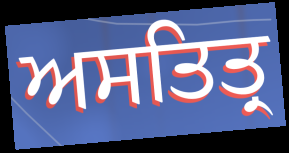
ਅਸਤਿਤ੍ਰ